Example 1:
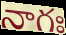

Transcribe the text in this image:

నాగః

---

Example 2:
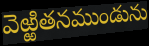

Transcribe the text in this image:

వెఱ్ఱితనముండును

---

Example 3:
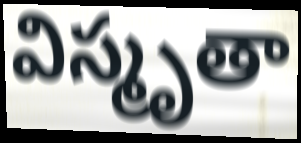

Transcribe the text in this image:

విస్మృతా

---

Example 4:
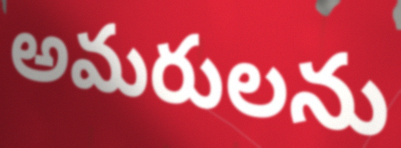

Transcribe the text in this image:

అమరులను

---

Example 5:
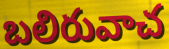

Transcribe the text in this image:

బలిరువాచ